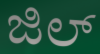
ಜಿಲ್